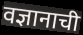
वज्ञानाची